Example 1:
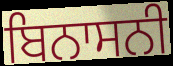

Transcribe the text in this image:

ਬਿਨਾਸਨੀ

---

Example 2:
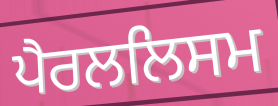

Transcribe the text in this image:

ਪੈਰਲਲਿਸਮ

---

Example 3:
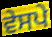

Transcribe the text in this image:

ਵੇਸਪੇ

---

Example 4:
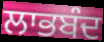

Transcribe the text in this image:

ਲਾਭਬੰਦ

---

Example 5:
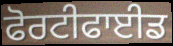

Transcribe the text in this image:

ਫੋਰਟੀਫਾਈਡ